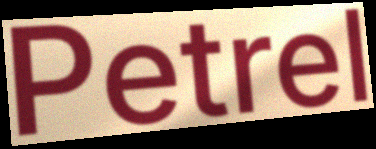
Petrel